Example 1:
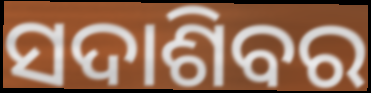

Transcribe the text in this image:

ସଦାଶିବର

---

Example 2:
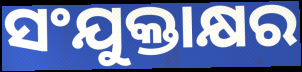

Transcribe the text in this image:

ସଂଯୁକ୍ତାକ୍ଷର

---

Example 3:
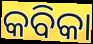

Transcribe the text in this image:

କବିକା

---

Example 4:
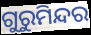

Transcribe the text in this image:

ଗୁରୁମିନ୍ଦର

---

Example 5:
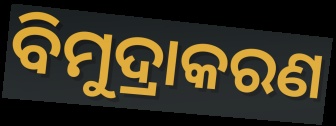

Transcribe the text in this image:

ବିମୁଦ୍ରାକରଣ